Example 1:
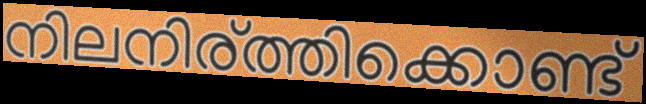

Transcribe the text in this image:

നിലനിര്ത്തിക്കൊണ്ട്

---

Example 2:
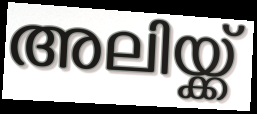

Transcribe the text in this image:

അലിയ്ക്ക്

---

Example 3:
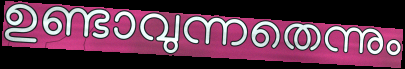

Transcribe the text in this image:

ഉണ്ടാവുന്നതെന്നും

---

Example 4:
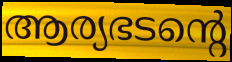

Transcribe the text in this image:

ആര്യഭടന്റെ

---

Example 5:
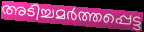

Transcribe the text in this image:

അടിച്ചമർത്തപ്പെട്ട